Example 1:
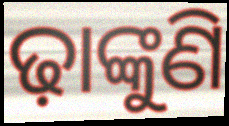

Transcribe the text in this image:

ଢ଼ାଙ୍କୁଣି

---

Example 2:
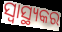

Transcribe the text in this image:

ସ୍ୱାସ୍ଥ୍ୟକର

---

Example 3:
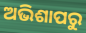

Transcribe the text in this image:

ଅଭିଶାପରୁ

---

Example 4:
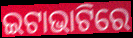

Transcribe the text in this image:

ଇଟାଭାଟିରେ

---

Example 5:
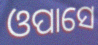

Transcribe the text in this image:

ଓପାସେ